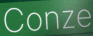
Conze